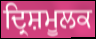
ਦ੍ਰਿਸ਼ਮੂਲਕ